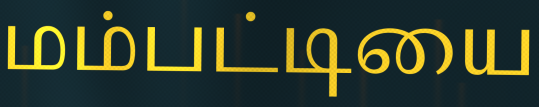
மம்பட்டியை